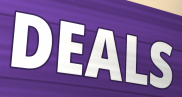
DEALS